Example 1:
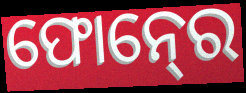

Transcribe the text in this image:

ଫୋନ୍‍ରେ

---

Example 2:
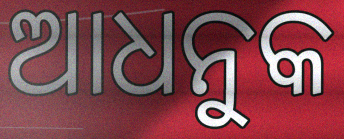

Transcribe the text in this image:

ଆଧନୁକ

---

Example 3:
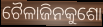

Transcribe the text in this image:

ଚୈଳାଜିନକୁଶୋ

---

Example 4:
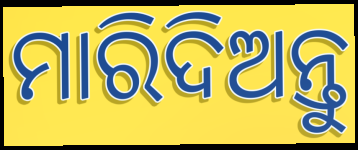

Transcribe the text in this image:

ମାରିଦିଅନ୍ତୁ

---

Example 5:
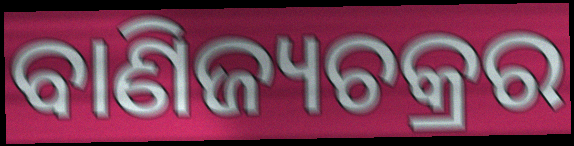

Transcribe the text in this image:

ବାଣିଜ୍ୟଚକ୍ରର